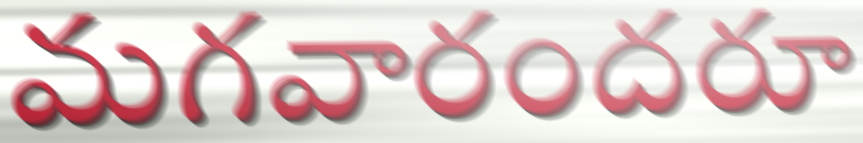
మగవారందరూ